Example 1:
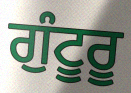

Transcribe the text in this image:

ਗੁੰਟੂਰੂ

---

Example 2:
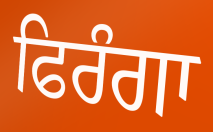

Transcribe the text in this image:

ਫਿਰੰਗਾ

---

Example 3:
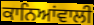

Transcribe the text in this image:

ਕਾਨਿਆਂਵਾਲੀ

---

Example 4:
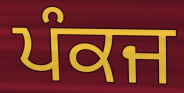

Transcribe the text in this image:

ਪੰਕਜ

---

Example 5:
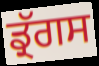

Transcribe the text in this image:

ਡ੍ਰੱਗਸ